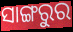
ସାଙ୍ଗରୁର